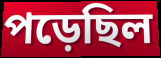
পড়েছিল